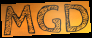
MGD